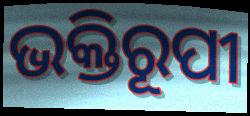
ଭକ୍ତିରୂପୀ